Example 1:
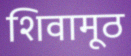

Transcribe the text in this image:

शिवामूठ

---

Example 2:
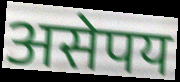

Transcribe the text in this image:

असेपय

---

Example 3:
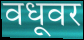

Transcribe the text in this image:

वधूवर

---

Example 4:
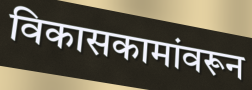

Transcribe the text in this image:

विकासकामांवरून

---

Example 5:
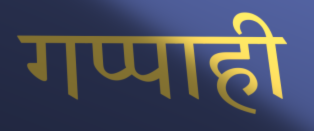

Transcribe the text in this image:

गप्पाही